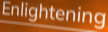
Enlightening